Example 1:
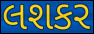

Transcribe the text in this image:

લશકર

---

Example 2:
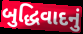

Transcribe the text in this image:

બુદ્ધિવાદનું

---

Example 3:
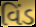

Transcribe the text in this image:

વિંડ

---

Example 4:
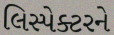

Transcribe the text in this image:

લિસ્પેક્ટરને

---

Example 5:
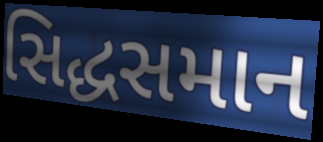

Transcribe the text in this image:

સિદ્ધસમાન